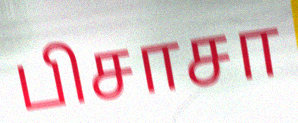
பிசாசா